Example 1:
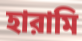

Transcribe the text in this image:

হারামি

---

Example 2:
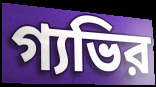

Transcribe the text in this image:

গ্যভির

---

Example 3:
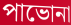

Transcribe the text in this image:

পাভোনা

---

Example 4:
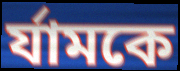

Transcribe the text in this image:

র্যামকে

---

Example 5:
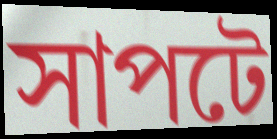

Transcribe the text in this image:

সাপটে